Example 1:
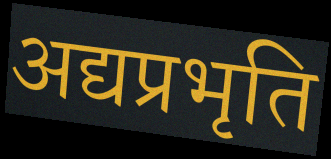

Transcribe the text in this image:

अद्यप्रभृति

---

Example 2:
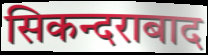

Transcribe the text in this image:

सिकन्दराबाद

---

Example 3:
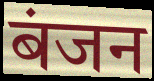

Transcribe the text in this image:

बंजन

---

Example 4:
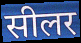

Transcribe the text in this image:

सीलर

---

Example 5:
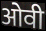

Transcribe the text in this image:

ओवी